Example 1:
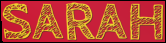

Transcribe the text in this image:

SARAH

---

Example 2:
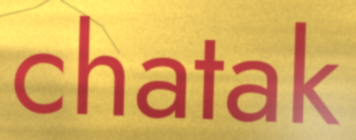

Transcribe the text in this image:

chatak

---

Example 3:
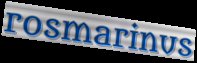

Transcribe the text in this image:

rosmarinus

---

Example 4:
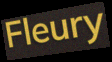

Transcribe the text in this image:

Fleury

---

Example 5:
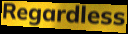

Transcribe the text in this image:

Regardless